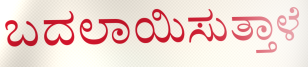
ಬದಲಾಯಿಸುತ್ತಾಳೆ